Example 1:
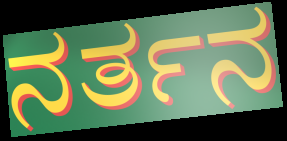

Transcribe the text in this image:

ನರ್ತನ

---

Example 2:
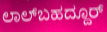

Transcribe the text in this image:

ಲಾಲ್‌ಬಹದ್ದೂರ್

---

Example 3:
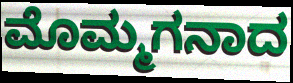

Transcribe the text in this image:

ಮೊಮ್ಮಗನಾದ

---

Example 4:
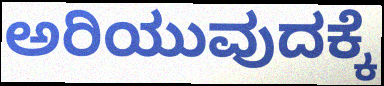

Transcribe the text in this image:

ಅರಿಯುವುದಕ್ಕೆ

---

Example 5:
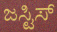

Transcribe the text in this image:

ಜಸ್ಟಿಸ್